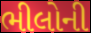
ભીલોની